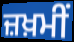
ਜ਼ਖ਼ਮੀਂ